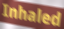
Inhaled